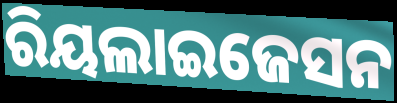
ରିୟଲାଇଜେସନ